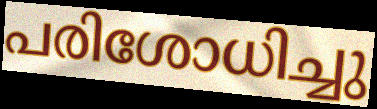
പരിശോധിച്ചു